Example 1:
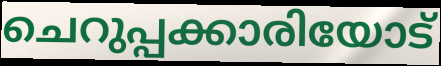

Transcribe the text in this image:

ചെറുപ്പക്കാരിയോട്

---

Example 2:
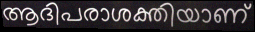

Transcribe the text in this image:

ആദിപരാശക്തിയാണ്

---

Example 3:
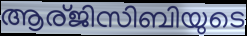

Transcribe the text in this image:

ആര്ജിസിബിയുടെ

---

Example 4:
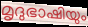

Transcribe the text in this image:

മൃദുഭാഷിയും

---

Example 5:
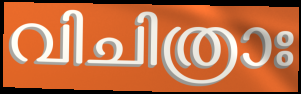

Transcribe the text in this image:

വിചിത്രാഃ